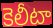
కెలీటా